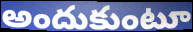
అందుకుంటూ